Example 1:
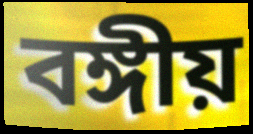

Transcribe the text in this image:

বঙ্গীয়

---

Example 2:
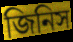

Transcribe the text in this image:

জিনিস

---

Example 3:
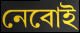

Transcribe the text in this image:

নেবোই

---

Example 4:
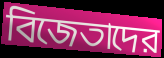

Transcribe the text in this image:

বিজেতাদের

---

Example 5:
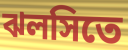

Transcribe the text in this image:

ঝলসিতে